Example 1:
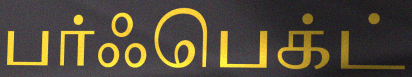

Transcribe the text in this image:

பர்ஃபெக்ட்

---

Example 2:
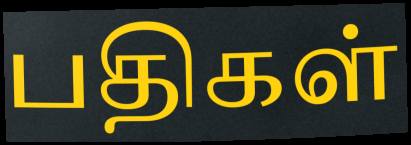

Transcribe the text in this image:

பதிகள்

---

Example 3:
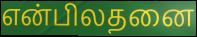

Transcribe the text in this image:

என்பிலதனை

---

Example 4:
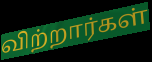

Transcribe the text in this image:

விற்றார்கள்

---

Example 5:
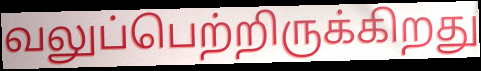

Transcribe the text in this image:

வலுப்பெற்றிருக்கிறது